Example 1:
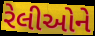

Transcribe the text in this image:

રેલીઓને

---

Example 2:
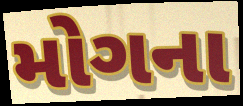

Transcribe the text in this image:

મોગના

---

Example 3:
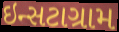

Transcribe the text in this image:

ઇન્સટાગ્રામ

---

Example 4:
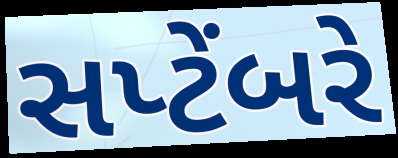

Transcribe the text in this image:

સપ્ટેંબરે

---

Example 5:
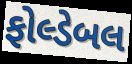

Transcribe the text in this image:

ફોલ્ડેબલ